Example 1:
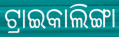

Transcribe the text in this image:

ଟ୍ରାଇକାଲିଙ୍ଗା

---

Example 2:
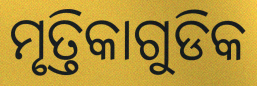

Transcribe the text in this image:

ମୃତ୍ତିକାଗୁଡିକ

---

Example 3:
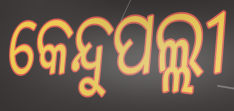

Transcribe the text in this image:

କେନ୍ଦୁପଲ୍ଲୀ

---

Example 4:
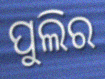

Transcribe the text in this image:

ପୁଲିର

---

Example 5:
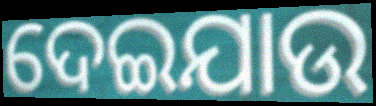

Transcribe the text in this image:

ଦେଇଯାଉ